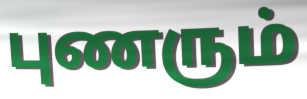
புணரும்